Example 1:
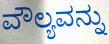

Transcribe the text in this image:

ವೌಲ್ಯವನ್ನು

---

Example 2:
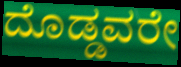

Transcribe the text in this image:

ದೊಡ್ಡವರೇ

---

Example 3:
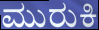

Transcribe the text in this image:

ಮುರುಕಿ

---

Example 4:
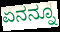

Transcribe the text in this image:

ಏನನ್ನೂ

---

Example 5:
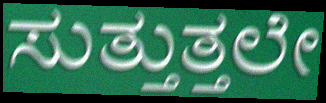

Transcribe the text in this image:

ಸುತ್ತುತ್ತಲೇ